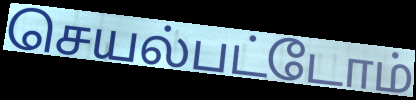
செயல்பட்டோம்